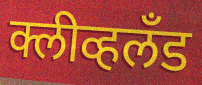
क्लीव्हलँड